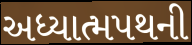
અધ્યાત્મપથની